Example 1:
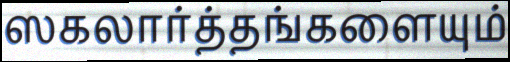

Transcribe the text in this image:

ஸகலார்த்தங்களையும்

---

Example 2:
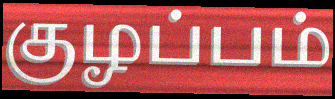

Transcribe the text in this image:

குழப்பம்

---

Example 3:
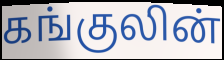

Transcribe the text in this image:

கங்குலின்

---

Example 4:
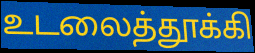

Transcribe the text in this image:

உடலைத்தூக்கி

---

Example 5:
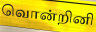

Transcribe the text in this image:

வொன்றினி